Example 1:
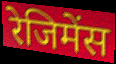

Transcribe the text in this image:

रेजिमेंस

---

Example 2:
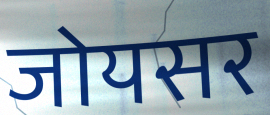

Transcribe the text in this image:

जोयसर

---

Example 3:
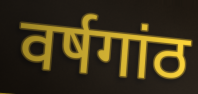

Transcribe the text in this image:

वर्षगांठ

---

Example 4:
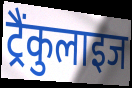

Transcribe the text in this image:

ट्रैंकुलाइज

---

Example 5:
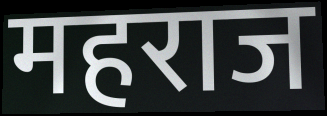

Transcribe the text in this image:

महराज